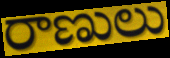
రాణులు